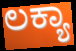
ಲಕ್ಯಾ